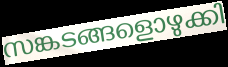
സങ്കടങ്ങളൊഴുക്കി